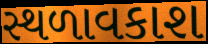
સ્થળાવકાશ